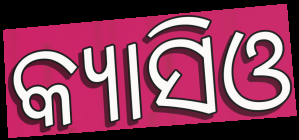
କ୍ୟାସିଓ